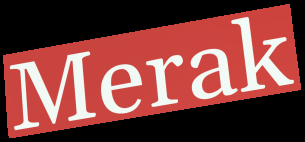
Merak